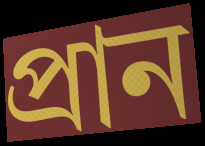
প্রান